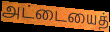
அட்டையைத்